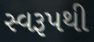
સ્વરૂપથી